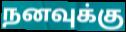
நனவுக்கு